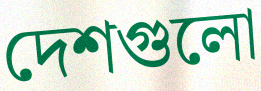
দেশগুলো